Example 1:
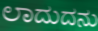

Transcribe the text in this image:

ಲಾದುದನು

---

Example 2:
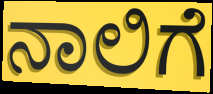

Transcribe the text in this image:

ನಾಲಿಗೆ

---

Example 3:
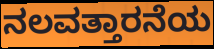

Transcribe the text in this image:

ನಲವತ್ತಾರನೆಯ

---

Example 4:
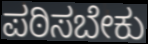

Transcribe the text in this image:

ಪಠಿಸಬೇಕು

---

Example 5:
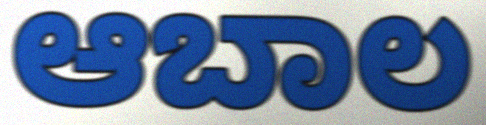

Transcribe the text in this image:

ಆಬಾಲ